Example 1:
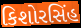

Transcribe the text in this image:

કિશોરસિંહ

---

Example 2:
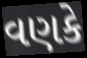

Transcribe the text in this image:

વણકે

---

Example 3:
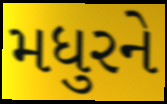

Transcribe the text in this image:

મધુરને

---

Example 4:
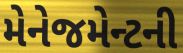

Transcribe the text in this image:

મેનેજમેન્ટની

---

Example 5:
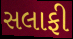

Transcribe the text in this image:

સલાફી